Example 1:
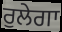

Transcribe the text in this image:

ਰੁਲੇਗਾ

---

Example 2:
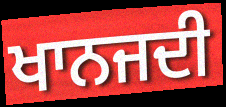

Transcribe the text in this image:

ਖਾਨਜਦੀ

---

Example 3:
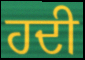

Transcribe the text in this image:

ਹਦੀ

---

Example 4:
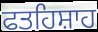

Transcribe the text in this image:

ਫਤਹਿਸ਼ਾਹ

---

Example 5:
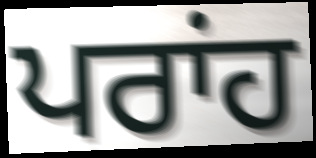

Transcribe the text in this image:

ਪਰਾਂਹ